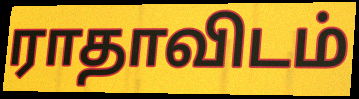
ராதாவிடம்